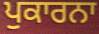
ਪੁਕਾਰਨਾ